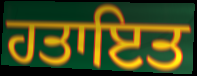
ਹਤਾਇਤ